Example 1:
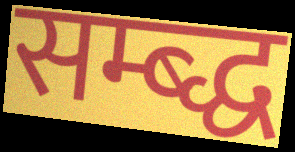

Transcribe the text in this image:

सम्ब्द्ध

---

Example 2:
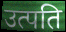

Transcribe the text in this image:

उत्पति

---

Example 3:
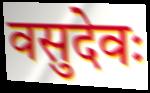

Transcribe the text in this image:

वसुदेवः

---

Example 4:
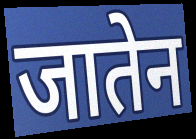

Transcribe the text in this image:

जातेन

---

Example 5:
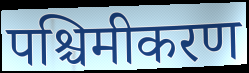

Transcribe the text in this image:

पश्चिमीकरण